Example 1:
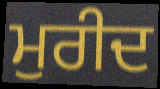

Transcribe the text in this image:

ਮੁਰੀਦ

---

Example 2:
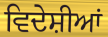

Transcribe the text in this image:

ਵਿਦੇਸ਼ੀਆਂ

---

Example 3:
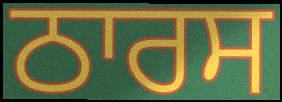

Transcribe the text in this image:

ਠਾਰਸ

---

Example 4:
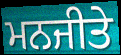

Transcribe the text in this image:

ਮਨਜੀਤੇ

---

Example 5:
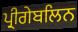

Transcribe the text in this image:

ਪ੍ਰੀਗੇਬਲਿਨ